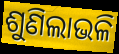
ଶୁଣିଲାଭଳି